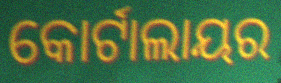
କୋର୍ଟାଲାୟର